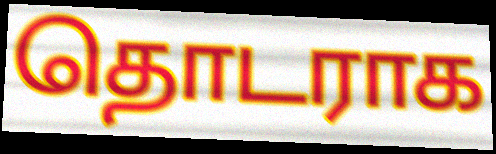
தொடராக